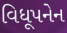
વિધૂપનેન